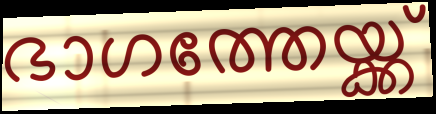
ഭാഗത്തേയ്ക്ക്